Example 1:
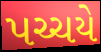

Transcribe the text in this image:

પચ્ચયે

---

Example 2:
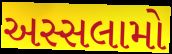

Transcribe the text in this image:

અસ્સલામો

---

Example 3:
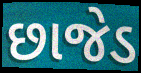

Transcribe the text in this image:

છાજેડ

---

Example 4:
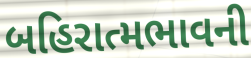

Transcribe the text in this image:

બહિરાત્મભાવની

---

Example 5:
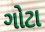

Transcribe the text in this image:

ગોટા